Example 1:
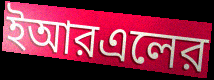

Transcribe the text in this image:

ইআরএলের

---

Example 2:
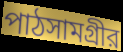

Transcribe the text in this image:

পাঠসামগ্রীর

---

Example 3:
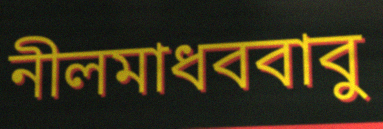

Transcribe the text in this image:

নীলমাধববাবু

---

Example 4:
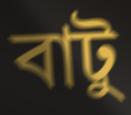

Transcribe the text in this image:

বাটু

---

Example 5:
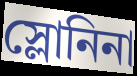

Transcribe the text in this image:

স্লোনিনা